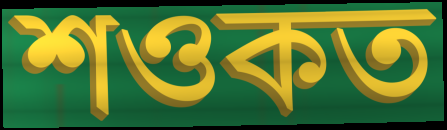
শওকত